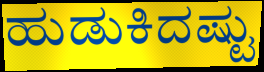
ಹುಡುಕಿದಷ್ಟು